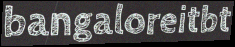
bangaloreitbt